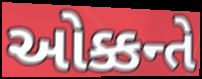
ઓક્કન્તે